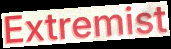
Extremist